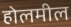
होलमील